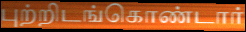
புற்றிடங்கொண்டார்